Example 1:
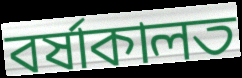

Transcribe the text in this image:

বৰ্ষাকালত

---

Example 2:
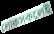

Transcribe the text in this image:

লোকসকলেই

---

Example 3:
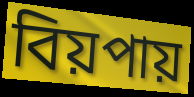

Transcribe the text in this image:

বিয়পায়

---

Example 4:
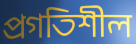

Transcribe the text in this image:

প্ৰগতিশীল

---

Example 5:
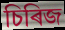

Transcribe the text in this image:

চিৰিজ